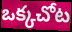
ఒక్కచోట